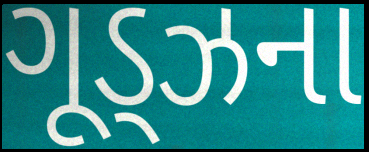
ગૂડ્ઝના